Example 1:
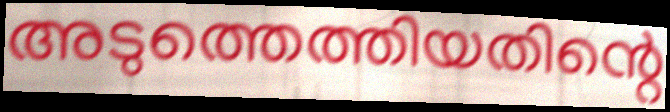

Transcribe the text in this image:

അടുത്തെത്തിയതിന്റെ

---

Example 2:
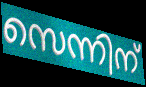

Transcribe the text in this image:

സെന്നിന്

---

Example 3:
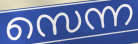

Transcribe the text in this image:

സെന്ന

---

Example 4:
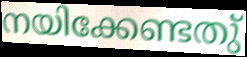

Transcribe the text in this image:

നയിക്കേണ്ടതു്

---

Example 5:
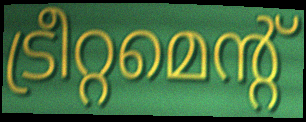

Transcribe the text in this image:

ട്രീറ്റമെന്റ്